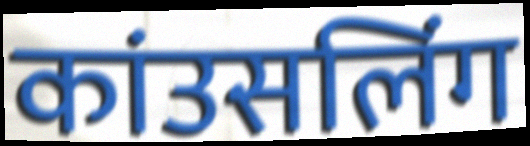
कांउसलिंग